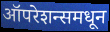
ऑपरेशन्समधून